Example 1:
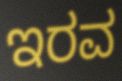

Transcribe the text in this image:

ಇರವ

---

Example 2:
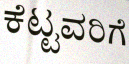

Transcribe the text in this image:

ಕೆಟ್ಟವರಿಗೆ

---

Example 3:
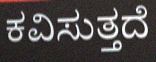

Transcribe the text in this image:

ಕವಿಸುತ್ತದೆ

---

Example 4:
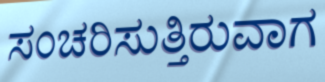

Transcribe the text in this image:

ಸಂಚರಿಸುತ್ತಿರುವಾಗ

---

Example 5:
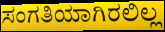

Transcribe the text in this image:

ಸಂಗತಿಯಾಗಿರಲಿಲ್ಲ